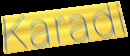
Karadi